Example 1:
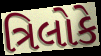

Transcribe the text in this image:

ત્રિલોકે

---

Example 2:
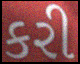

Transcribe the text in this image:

કરી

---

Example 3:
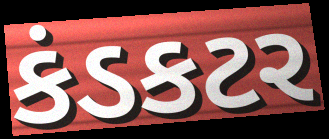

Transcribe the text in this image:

કંડકટર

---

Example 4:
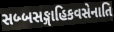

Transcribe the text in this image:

સબ્બસઙ્ગાહિકવસેનાતિ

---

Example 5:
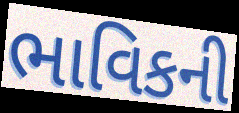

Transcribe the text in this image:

ભાવિકની